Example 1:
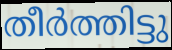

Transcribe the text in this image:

തീർത്തിട്ടു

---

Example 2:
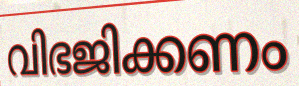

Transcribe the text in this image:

വിഭജിക്കണം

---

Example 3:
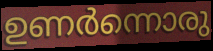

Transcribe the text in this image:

ഉണർന്നൊരു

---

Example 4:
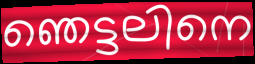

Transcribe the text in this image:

ഞെട്ടലിനെ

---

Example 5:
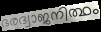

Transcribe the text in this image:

ഭരദ്വാജനിത്ഥം